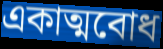
একাত্মবোধ